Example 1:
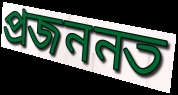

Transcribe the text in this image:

প্ৰজননত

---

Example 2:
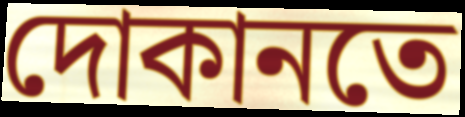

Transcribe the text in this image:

দোকানতে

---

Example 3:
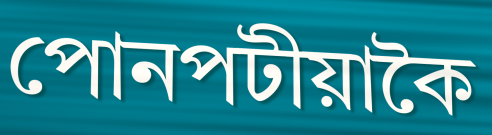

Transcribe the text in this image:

পোনপটীয়াকৈ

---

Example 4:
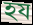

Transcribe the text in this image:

হয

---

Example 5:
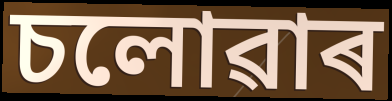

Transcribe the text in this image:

চলোৱাৰ